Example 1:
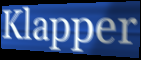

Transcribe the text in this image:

Klapper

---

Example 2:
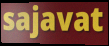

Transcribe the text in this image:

sajavat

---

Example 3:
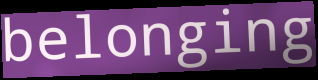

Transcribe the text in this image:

belonging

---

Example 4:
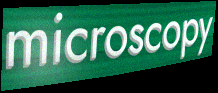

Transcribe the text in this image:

microscopy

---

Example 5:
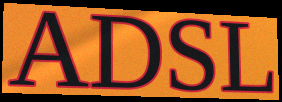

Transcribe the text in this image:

ADSL